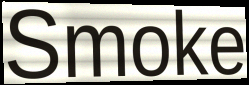
Smoke